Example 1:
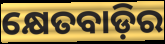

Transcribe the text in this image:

କ୍ଷେତବାଡ଼ିର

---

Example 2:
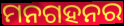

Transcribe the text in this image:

ମନଗହନର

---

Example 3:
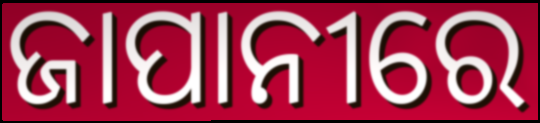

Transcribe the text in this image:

ଜାପାନୀରେ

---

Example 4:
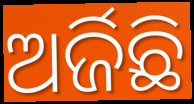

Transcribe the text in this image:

ଅର୍ଜିଛି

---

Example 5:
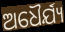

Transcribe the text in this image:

ଅଧୈର୍ଯ୍ୟ